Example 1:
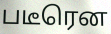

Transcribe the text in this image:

படீரென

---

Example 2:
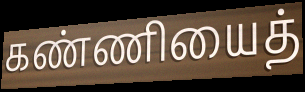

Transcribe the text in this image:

கண்ணியைத்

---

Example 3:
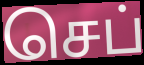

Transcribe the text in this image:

செப்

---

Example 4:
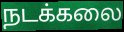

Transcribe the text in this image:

நடக்கலை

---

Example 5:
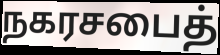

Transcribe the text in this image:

நகரசபைத்